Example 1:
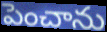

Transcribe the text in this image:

పెంచాను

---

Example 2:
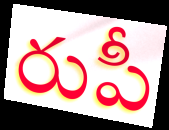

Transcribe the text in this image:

రుపీ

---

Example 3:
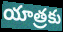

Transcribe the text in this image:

యాత్రకు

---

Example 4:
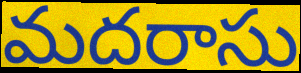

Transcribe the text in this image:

మదరాసు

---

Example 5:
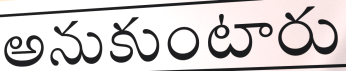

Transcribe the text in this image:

అనుకుంటారు